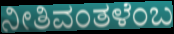
ನೀತಿವಂತಳೆಂಬ